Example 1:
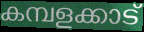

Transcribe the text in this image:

കമ്പളക്കാട്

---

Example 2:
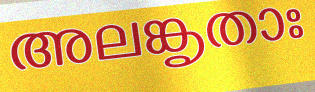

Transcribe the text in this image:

അലങ്കൃതാഃ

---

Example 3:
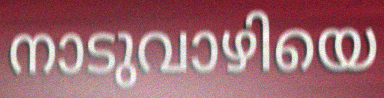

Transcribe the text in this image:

നാടുവാഴിയെ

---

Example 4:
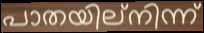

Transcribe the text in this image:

പാതയില്നിന്ന്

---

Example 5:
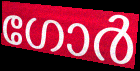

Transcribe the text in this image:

ഗോർ